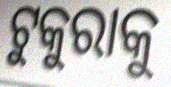
ଟୁକୁରାକୁ